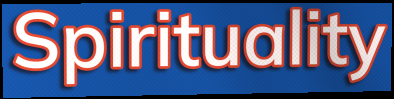
Spirituality